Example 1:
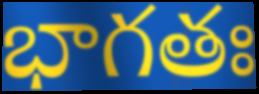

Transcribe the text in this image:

భాగతః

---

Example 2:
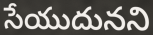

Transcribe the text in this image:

సేయుదునని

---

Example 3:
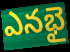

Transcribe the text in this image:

ఎనభై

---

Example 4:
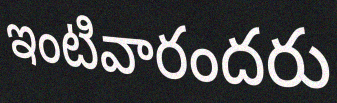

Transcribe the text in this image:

ఇంటివారందరు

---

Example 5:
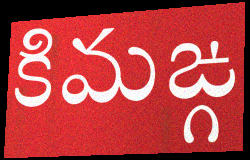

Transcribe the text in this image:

కిమఙ్గ